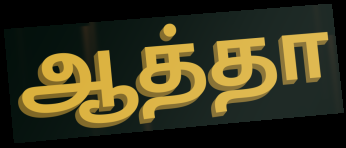
ஆத்தா